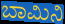
ಬಾಮಿನಿ